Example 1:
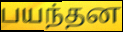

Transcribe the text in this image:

பயந்தன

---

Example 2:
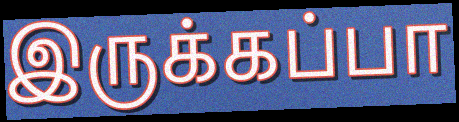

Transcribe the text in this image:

இருக்கப்பா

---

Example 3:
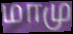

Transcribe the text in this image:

மாமு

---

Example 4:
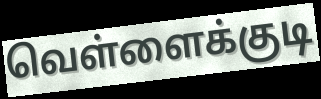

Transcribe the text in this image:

வெள்ளைக்குடி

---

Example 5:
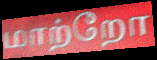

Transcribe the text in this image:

மாற்றோ